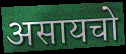
असायचो